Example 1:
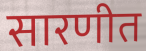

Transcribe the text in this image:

सारणीत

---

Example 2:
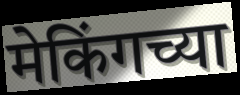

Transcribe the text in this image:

मेकिंगच्या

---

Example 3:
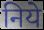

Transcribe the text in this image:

निये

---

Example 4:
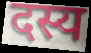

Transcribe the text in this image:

दस्य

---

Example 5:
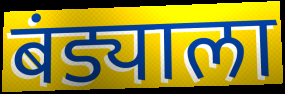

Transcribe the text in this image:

बंड्याला